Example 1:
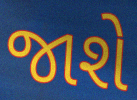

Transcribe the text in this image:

જાશે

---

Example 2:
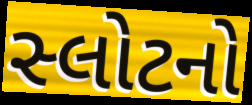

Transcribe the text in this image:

સ્લોટનો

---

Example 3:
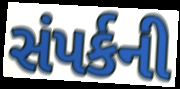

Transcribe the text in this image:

સંપર્કની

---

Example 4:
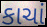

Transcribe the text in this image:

કાચાં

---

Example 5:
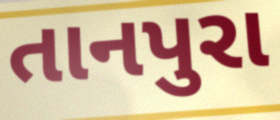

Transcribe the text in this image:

તાનપુરા